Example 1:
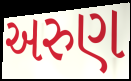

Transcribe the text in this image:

અરુણ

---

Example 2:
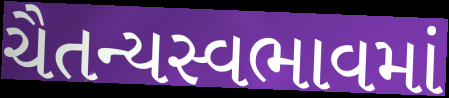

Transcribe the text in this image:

ચૈતન્યસ્વભાવમાં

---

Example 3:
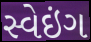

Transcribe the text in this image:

સ્વેઇંગ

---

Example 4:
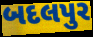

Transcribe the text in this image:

બદલપુર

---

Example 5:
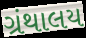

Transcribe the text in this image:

ગ્રંથાલય